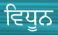
ਵਿਧੂਨ